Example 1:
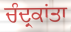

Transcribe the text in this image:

ਚੰਦ੍ਰਕਾਂਤਾ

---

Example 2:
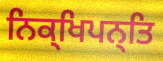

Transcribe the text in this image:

ਨਿਕ੍ਖਿਪਨ੍ਤਿ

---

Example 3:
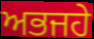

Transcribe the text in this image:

ਅਭਜਹੇ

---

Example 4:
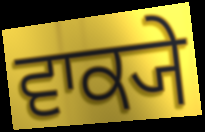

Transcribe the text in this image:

ਵਾਕ੍ਯੇ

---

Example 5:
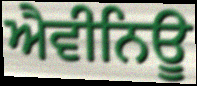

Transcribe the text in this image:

ਐਵੀਨਿਊ